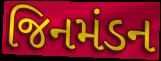
જિનમંડન